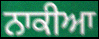
ਨਾਕੀਆ